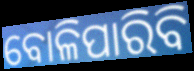
ବୋଳିପାରିବି